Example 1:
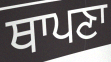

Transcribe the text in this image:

ਥਾਪਣਾ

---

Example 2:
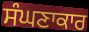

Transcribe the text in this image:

ਸੰਘਣਾਕਾਰ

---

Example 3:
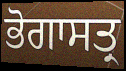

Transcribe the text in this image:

ਭੋਗਾਸਤ੍ਰ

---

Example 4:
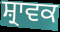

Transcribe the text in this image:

ਸ਼੍ਰਾਵਕ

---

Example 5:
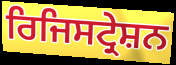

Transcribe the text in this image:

ਰਿਜਿਸਟ੍ਰੇਸ਼ਨ